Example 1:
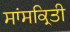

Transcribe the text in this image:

ਸਾਂਸਕ੍ਰਿਤੀ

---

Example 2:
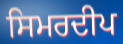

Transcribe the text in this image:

ਸਿਮਰਦੀਪ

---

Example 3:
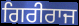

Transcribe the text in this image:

ਗਿਰੀਰਾਜ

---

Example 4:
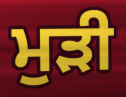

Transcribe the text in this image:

ਮੁੜੀ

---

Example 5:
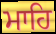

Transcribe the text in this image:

ਮਾਹਿ